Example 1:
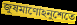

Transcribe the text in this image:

জুষমাণোঽনুশেতে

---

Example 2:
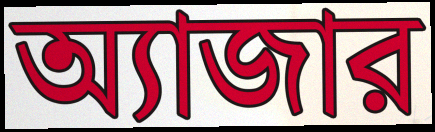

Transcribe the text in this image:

অ্যাজার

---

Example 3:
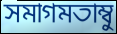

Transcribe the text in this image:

সমাগমতাম্বু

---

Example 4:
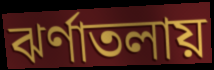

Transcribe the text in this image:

ঝর্ণাতলায়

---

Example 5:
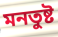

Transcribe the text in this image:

মনতুষ্ট